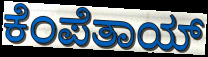
ಕೆಂಪೆತಾಯ್